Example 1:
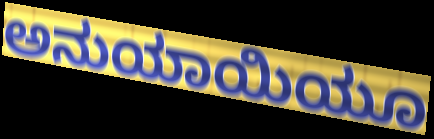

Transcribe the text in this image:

ಅನುಯಾಯಿಯೂ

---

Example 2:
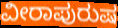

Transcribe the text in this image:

ವೀರಾಪುರುಷ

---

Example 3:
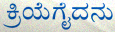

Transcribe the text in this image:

ಕ್ರಿಯೆಗೈದನು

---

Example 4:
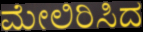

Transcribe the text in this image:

ಮೇಲಿರಿಸಿದ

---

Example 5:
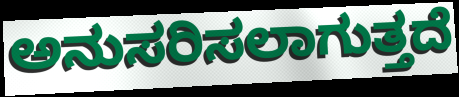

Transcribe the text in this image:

ಅನುಸರಿಸಲಾಗುತ್ತದೆ